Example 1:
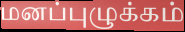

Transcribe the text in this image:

மனப்புழுக்கம்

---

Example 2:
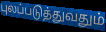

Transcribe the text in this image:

புலப்படுத்துவதும்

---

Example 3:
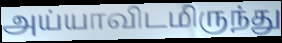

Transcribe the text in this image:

அய்யாவிடமிருந்து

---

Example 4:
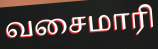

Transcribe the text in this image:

வசைமாரி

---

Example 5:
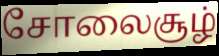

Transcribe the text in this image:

சோலைசூழ்